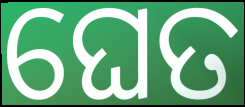
ଘେତ